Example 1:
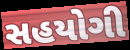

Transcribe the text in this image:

સહયોગી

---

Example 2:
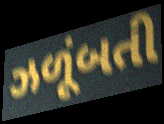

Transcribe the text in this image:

ઝળૂંબતી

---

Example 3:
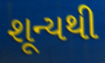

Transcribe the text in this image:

શૂન્યથી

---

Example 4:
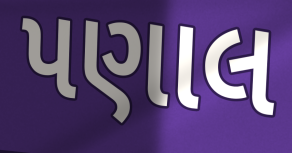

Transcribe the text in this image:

પણાલ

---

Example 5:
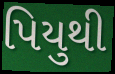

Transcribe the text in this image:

પિયુથી